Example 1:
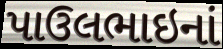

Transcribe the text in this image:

પાઉલભાઇનાં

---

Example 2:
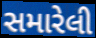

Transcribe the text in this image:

સમારેલી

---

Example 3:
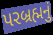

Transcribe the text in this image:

પરબ્રહ્મનું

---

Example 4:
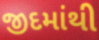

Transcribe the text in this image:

જીદમાંથી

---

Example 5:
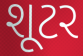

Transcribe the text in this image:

શૂટર